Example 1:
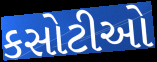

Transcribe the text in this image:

કસોટીઓ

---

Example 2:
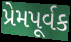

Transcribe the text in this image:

પ્રેમપૂર્વક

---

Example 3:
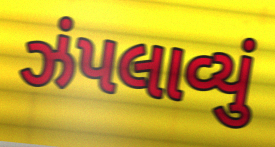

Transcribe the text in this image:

ઝંપલાવ્યું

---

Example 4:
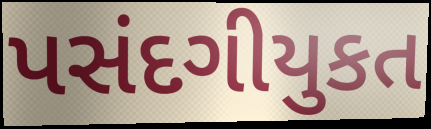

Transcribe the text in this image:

પસંદગીયુકત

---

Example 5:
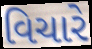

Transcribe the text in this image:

વિચારે